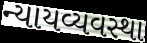
ન્યાયવ્યવસ્થા